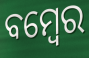
ବମ୍ବେର